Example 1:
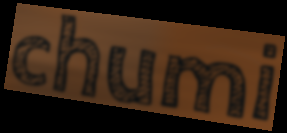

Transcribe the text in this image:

chumi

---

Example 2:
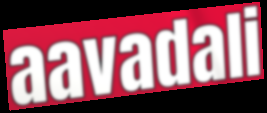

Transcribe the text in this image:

aavadali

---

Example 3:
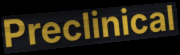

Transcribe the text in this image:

Preclinical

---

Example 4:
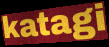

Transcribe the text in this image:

katagi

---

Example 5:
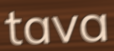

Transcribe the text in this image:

tava